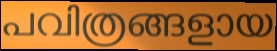
പവിത്രങ്ങളായ